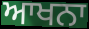
ਆਖਨਾ